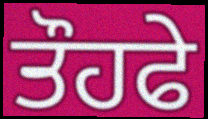
ਤੌਹਫੇ